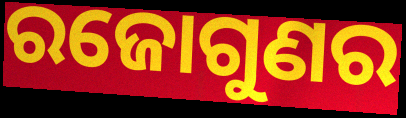
ରଜୋଗୁଣର